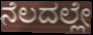
ನೆಲದಲ್ಲೇ